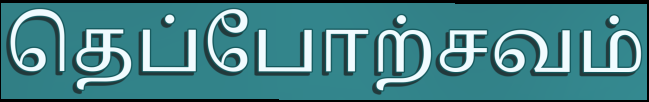
தெப்போற்சவம்